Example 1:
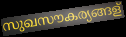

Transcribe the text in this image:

സുഖസൗകര്യങ്ങള്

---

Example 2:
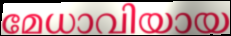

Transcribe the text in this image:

മേധാവിയായ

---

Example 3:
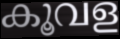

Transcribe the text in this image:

കൂവള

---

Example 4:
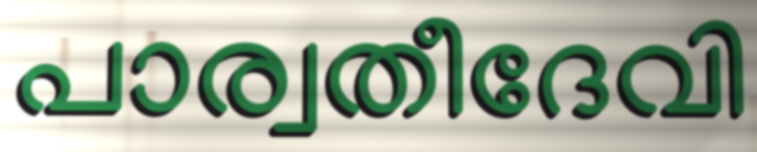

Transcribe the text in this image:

പാര്വതീദേവി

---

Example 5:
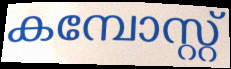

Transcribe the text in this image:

കമ്പോസ്റ്റ്